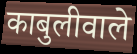
काबुलीवाले